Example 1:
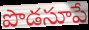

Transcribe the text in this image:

పొడసూపే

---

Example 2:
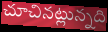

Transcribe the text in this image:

చూచినట్లున్నది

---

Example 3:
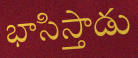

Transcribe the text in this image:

భాసిస్తాడు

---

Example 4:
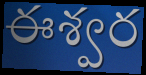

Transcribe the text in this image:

ఈశ్వర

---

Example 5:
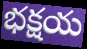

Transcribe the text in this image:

భక్షయ